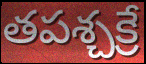
తపశ్చక్రే